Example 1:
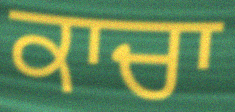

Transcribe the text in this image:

ਕਾਚਾ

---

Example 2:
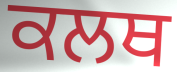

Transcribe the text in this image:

ਕਲਥ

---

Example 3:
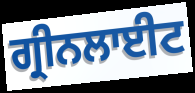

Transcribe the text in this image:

ਗ੍ਰੀਨਲਾਈਟ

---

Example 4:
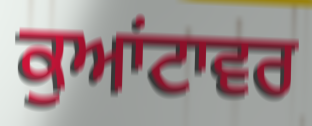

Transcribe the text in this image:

ਕੁਆਂਟਾਵਰ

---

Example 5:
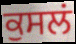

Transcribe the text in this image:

ਕੁਸਲਂ